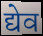
द्येव